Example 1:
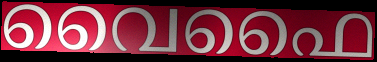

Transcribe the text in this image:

വൈഫൈ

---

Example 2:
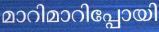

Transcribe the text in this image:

മാറിമാറിപ്പോയി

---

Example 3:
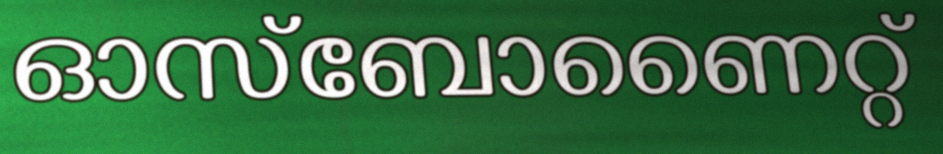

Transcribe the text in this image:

ഓസ്ബോണൈറ്റ്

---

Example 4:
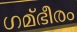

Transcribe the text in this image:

ഗമ്ഭീരം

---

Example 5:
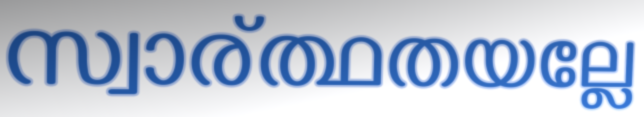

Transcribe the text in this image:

സ്വാര്ത്ഥതയല്ലേ